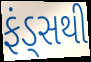
ફંડ્સથી